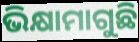
ଭିକ୍ଷାମାଗୁଛି